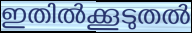
ഇതിൽക്കൂടുതൽ